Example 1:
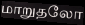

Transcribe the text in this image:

மாறுதலோ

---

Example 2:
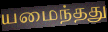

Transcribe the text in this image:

யமைந்தது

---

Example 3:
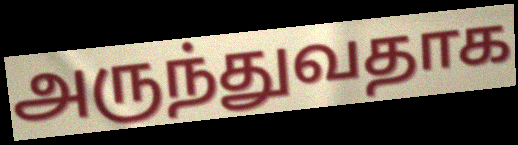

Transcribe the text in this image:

அருந்துவதாக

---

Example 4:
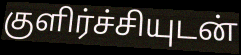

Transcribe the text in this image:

குளிர்ச்சியுடன்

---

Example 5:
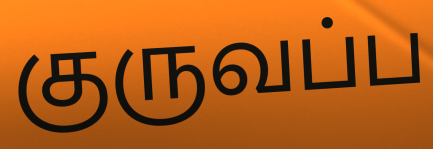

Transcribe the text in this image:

குருவப்ப